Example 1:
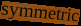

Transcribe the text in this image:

symmetric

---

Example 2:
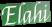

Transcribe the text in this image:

Elahi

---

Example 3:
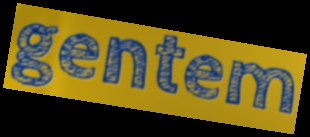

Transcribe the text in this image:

gentem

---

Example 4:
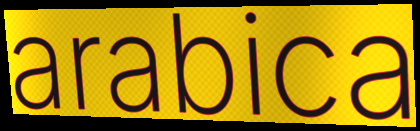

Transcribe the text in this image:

arabica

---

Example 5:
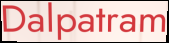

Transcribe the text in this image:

Dalpatram